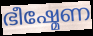
ഭീഷ്മേണ